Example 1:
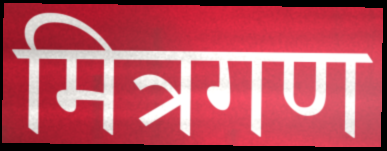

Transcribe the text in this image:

मित्रगण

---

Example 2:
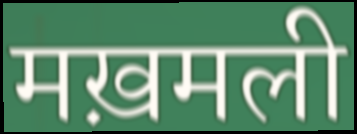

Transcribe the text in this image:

मख़मली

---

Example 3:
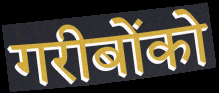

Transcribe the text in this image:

गरीबोंको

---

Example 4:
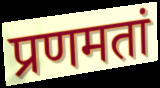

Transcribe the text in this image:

प्रणमतां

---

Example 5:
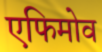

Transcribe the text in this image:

एफिमोव